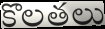
కొలతలు